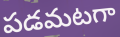
పడమటగా